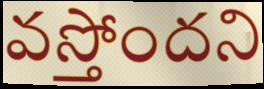
వస్తోందని